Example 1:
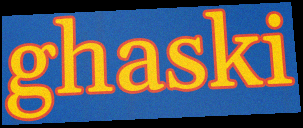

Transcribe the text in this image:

ghaski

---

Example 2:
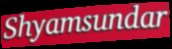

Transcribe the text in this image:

Shyamsundar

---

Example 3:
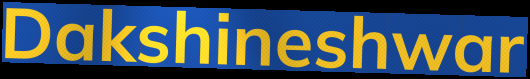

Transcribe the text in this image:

Dakshineshwar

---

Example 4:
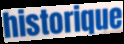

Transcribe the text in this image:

historique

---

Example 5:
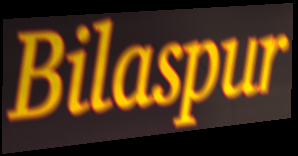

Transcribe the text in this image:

Bilaspur